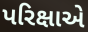
પરિક્ષાએ